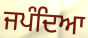
ਜਪੰਦਿਆ